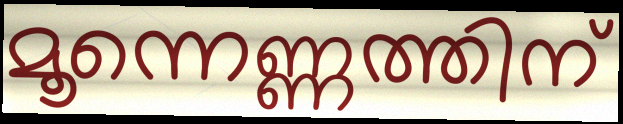
മൂന്നെണ്ണത്തിന്